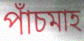
পাঁচমাহ